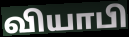
வியாபி